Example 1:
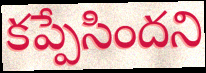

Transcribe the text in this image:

కప్పేసిందని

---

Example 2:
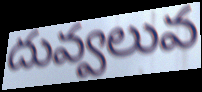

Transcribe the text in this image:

దువ్వలువ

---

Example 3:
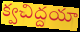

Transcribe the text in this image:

క్వచిద్దయా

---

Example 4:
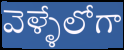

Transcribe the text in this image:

వెళ్ళేలోగా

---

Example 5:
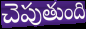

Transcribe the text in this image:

చెపుతుంది